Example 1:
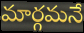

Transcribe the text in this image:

మార్గమనే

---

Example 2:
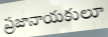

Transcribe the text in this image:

ప్రజానాయకులూ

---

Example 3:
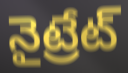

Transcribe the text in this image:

నైట్రేట్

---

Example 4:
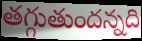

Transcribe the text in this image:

తగ్గుతుందన్నది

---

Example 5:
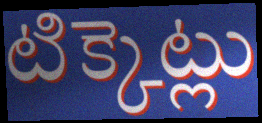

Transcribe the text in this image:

టిక్కెట్లు